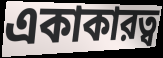
একাকারত্ব